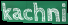
kachni